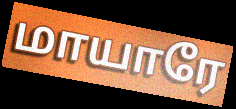
மாயாரே